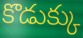
కొడుక్కు